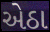
એઠા